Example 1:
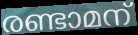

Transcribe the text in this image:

രണ്ടാമന്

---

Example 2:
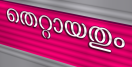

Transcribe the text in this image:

തെറ്റായതും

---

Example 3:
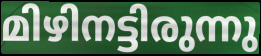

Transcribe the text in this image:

മിഴിനട്ടിരുന്നു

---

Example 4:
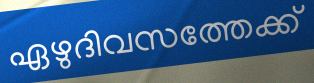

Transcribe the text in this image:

ഏഴുദിവസത്തേക്ക്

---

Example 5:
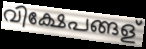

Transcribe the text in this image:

വിക്ഷേപങ്ങള്